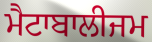
ਮੈਟਾਬਾਲੀਜਮ